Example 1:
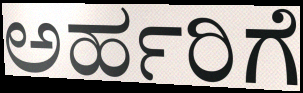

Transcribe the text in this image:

ಅರ್ಹರಿಗೆ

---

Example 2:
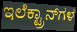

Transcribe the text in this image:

ಇಲೆಕ್ಟ್ರಾನ್‍ಗಳ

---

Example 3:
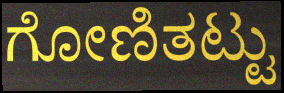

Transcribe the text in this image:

ಗೋಣಿತಟ್ಟು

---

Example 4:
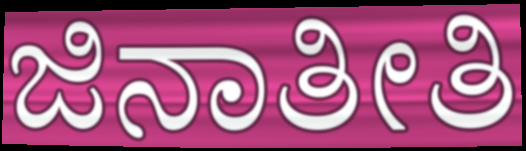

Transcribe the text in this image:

ಜಿನಾತೀತಿ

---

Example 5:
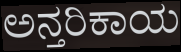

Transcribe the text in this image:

ಅನ್ತರಿಕಾಯ